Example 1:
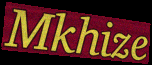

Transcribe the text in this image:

Mkhize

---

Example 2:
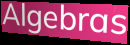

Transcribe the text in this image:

Algebras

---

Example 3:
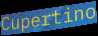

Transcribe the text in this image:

Cupertino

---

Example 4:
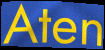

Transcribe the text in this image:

Aten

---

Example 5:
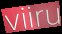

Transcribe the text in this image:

viiru